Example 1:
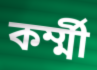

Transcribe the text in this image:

কর্ম্মী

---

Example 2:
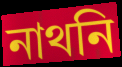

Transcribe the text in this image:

নাথনি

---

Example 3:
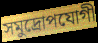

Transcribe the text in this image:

সমুদ্রোপযোগী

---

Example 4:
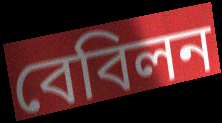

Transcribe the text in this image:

বেবিলন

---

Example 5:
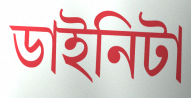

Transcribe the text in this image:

ডাইনিটা